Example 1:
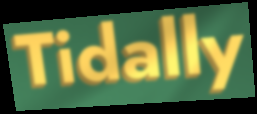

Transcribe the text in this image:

Tidally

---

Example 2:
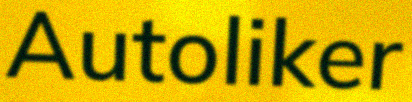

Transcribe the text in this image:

Autoliker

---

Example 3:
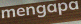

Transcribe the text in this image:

mengapa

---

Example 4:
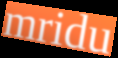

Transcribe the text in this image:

mridu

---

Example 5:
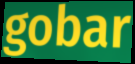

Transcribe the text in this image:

gobar